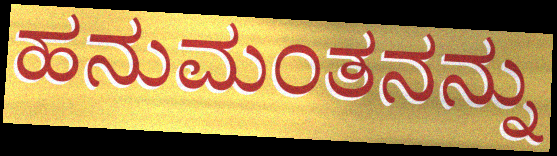
ಹನುಮಂತನನ್ನು